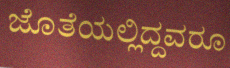
ಜೊತೆಯಲ್ಲಿದ್ದವರೂ